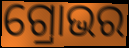
ଗ୍ରୋଭର